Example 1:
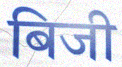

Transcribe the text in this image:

बिजी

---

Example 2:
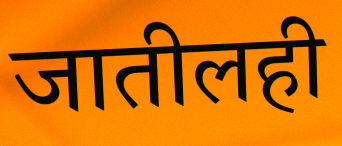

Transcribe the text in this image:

जातीलही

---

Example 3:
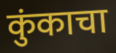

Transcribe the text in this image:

कुंकाचा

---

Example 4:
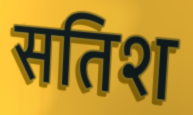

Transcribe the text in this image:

सतिश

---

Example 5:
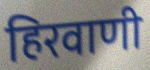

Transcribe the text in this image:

हिरवाणी